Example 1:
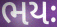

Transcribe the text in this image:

ભયઃ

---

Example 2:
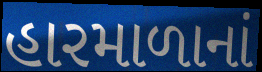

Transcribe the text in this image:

હારમાળાનાં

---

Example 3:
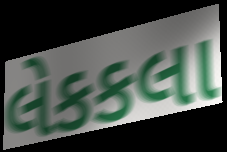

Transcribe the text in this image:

લેકકલા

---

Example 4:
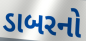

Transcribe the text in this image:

ડાબરનો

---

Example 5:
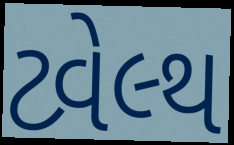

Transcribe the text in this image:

ટ્વેલ્થ